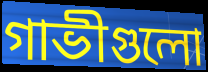
গাভীগুলো